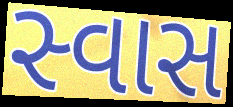
સ્વાસ